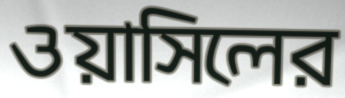
ওয়াসিলের